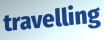
travelling